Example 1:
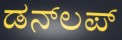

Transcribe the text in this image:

ಡನ್‌ಲಪ್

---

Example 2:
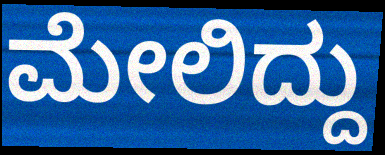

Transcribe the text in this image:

ಮೇಲಿದ್ದು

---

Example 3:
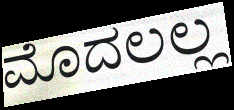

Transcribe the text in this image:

ಮೊದಲಲ್ಲ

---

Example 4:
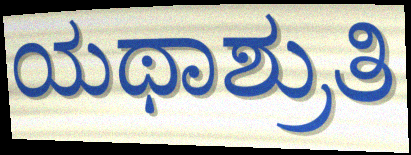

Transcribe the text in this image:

ಯಥಾಶ್ರುತಿ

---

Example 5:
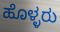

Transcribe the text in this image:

ಹೊಳ್ಳರು